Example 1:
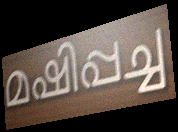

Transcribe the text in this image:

മഷിപ്പച്ച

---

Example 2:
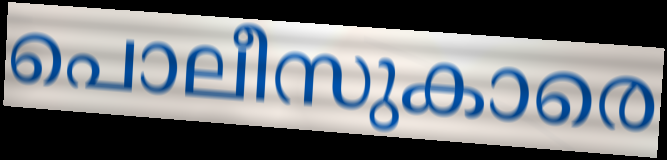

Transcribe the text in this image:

പൊലീസുകാരെ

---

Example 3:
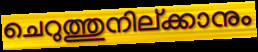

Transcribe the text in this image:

ചെറുത്തുനില്ക്കാനും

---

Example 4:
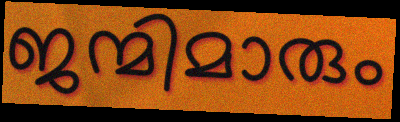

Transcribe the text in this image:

ജന്മിമാരും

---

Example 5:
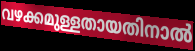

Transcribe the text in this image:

വഴക്കമുള്ളതായതിനാൽ